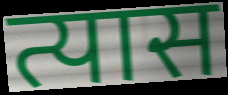
त्यास